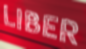
LIBER